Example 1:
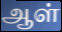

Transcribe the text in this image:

ஆள்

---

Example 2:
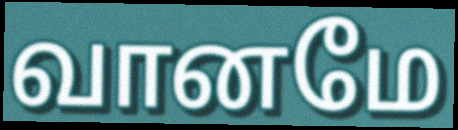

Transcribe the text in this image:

வானமே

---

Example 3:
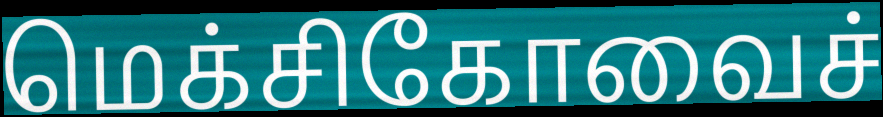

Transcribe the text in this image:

மெக்சிகோவைச்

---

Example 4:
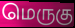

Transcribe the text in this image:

மெருகு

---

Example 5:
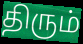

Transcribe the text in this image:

திரும்